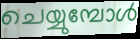
ചെയ്യുമ്പോൾ